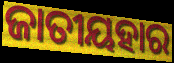
ଜାତୀୟହାର